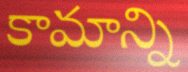
కామాన్ని